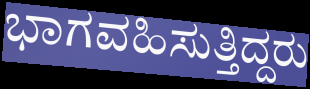
ಭಾಗವಹಿಸುತ್ತಿದ್ದರು